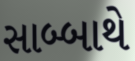
સાબ્બાથે